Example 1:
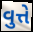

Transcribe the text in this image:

વુત્તે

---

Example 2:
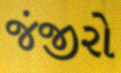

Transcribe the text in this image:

જંજીરો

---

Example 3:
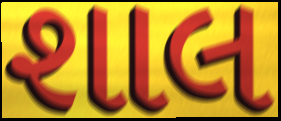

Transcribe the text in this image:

શાલ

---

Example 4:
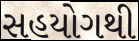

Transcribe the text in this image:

સહયોગથી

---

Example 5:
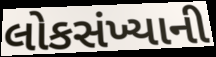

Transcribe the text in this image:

લોકસંખ્યાની